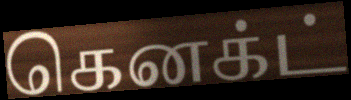
கெனக்ட்